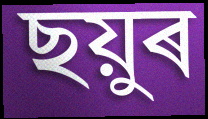
ছয়ুৰ